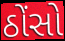
ઠોંસો